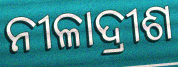
ନୀଳାଦ୍ରୀଶ